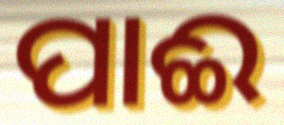
ପାଈ